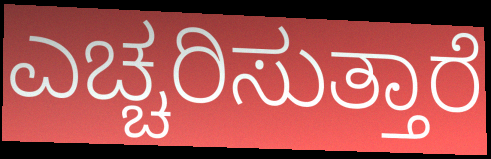
ಎಚ್ಚರಿಸುತ್ತಾರೆ